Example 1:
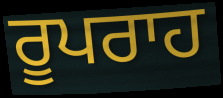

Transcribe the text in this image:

ਰੂਪਰਾਹ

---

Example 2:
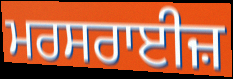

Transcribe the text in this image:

ਮਰਸਰਾਈਜ਼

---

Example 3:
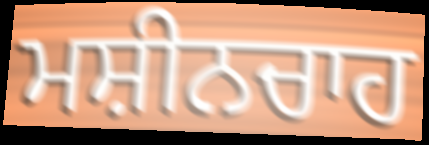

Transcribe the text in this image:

ਮਸ਼ੀਨਚਾਹ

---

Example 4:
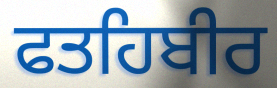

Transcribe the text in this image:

ਫਤਹਿਬੀਰ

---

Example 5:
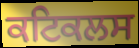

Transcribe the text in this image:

ਕਟਿਕਲਸ